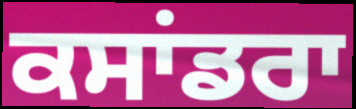
ਕਸਾਂਡਰਾ